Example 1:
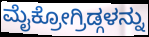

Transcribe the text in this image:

ಮೈಕ್ರೋಗ್ರಿಡ್ಗಳನ್ನು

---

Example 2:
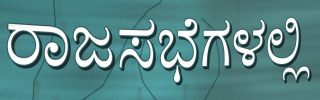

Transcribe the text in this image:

ರಾಜಸಭೆಗಳಲ್ಲಿ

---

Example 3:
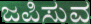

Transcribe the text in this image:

ಜಪಿಸುವ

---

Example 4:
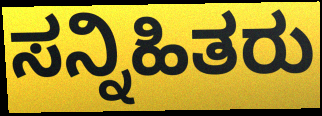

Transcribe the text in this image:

ಸನ್ನಿಹಿತರು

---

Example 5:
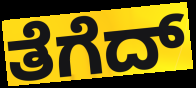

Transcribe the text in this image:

ತೆಗೆದ್